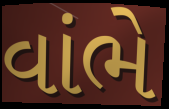
વાંભે